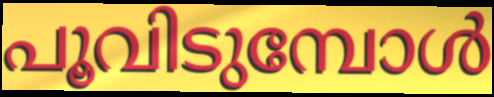
പൂവിടുമ്പോൾ